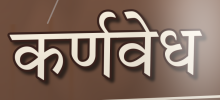
कर्णवेध